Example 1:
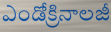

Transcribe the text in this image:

ఎండోక్రినాలజీ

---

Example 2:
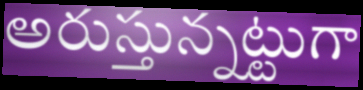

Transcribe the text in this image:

అరుస్తున్నట్టుగా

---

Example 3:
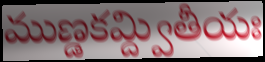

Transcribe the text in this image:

ముణ్డకమ్ద్వితీయః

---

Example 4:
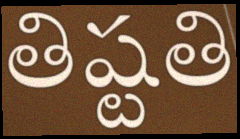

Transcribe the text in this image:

తిష్టతి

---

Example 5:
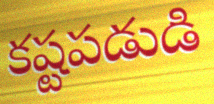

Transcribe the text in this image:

కష్టపడుడి